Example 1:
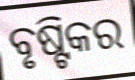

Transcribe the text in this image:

ବୃଷ୍ଟିକର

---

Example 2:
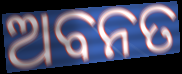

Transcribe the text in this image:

ଅବନତ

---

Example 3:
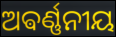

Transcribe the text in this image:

ଅଵର୍ଣ୍ଣନୀୟ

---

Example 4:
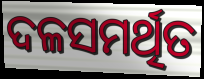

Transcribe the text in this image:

ଦଳସମର୍ଥିତ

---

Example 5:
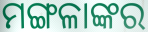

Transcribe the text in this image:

ମଙ୍ଗଳାଙ୍କର